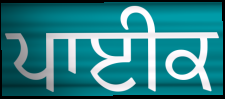
ਪਾਈਕ